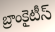
బ్రాంకైటీస్